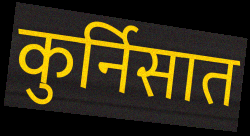
कुर्निसात